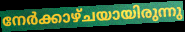
നേർക്കാഴ്ചയായിരുന്നു